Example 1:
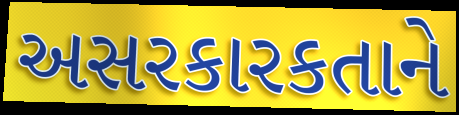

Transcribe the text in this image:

અસરકારકતાને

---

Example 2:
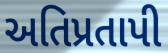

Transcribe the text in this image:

અતિપ્રતાપી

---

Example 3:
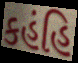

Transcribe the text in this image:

કહંહિ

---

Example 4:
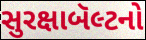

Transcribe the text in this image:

સુરક્ષાબૅલ્ટનો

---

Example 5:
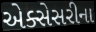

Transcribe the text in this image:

એક્સેસરીના